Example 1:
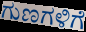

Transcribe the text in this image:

ಗುಣಗಳಿಗೆ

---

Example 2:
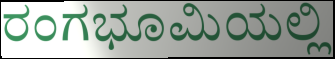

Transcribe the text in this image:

ರಂಗಭೂಮಿಯಲ್ಲಿ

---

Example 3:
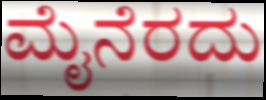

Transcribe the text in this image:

ಮೈನೆರದು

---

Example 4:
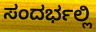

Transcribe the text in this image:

ಸಂದರ್ಭಲ್ಲಿ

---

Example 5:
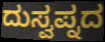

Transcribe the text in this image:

ದುಸ್ವಪ್ನದ